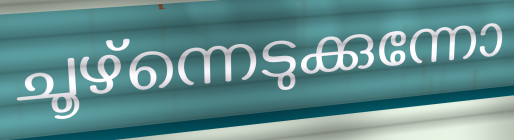
ചൂഴ്ന്നെടുക്കുന്നോ